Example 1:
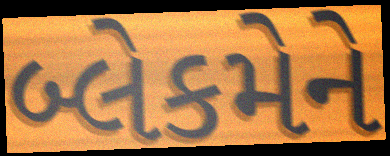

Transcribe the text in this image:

બ્લેકમેને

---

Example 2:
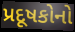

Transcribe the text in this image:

પ્રદૂષકોનો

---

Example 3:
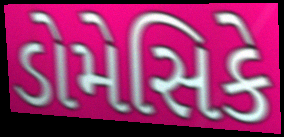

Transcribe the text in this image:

ડોમેસિકે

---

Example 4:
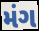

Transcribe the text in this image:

મંગ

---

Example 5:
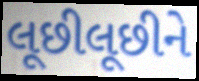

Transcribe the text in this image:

લૂછીલૂછીને